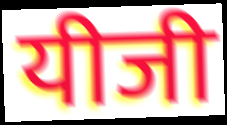
यीजी